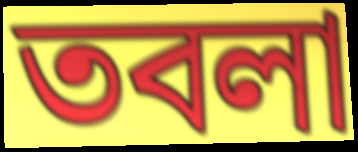
তবলা